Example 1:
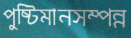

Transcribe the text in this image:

পুষ্টিমানসম্পন্ন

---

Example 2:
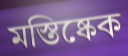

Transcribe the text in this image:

মস্তিষ্কেক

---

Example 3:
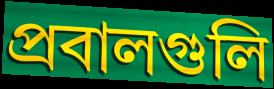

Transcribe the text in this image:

প্রবালগুলি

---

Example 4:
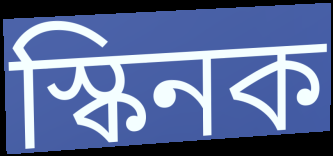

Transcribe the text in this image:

স্কিনক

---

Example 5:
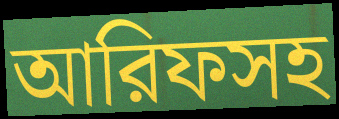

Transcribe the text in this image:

আরিফসহ